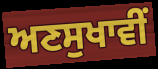
ਅਣਸੁਖਾਵੀਂ